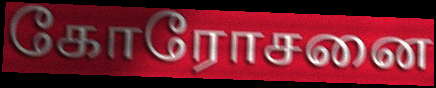
கோரோசனை